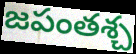
జపంతశ్చ